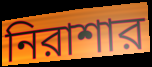
নিরাশার